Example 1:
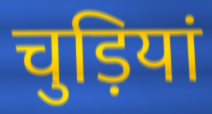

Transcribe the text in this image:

चुड़ियां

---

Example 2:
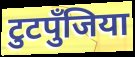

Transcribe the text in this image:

टुटपुँजिया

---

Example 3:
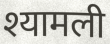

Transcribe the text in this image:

श्यामली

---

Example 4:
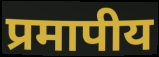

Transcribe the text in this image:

प्रमापीय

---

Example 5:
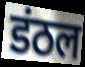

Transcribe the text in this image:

डंठल